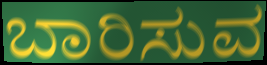
ಬಾರಿಸುವ